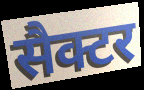
सैक्टर